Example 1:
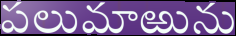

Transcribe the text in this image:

పలుమాఱును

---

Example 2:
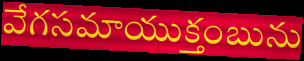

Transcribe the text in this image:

వేగసమాయుక్తంబును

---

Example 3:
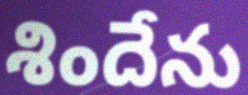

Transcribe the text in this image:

శిందేను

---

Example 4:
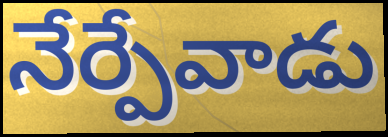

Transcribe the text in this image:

నేర్పేవాడు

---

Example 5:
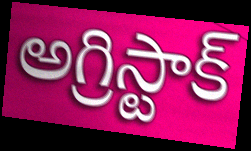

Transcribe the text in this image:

అగ్రిస్టాక్